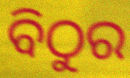
ବିଠୁର